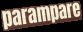
parampare